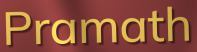
Pramath